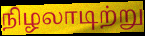
நிழலாடிற்று